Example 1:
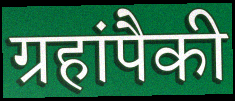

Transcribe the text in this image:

ग्रहांपैकी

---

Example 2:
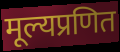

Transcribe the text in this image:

मूल्यप्रणित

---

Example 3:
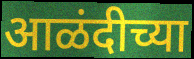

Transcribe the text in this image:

आळंदीच्या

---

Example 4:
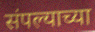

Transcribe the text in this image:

संपल्याच्या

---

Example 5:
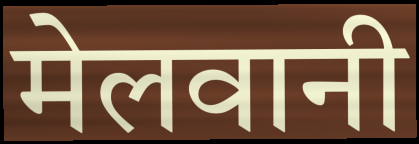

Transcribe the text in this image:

मेलवानी